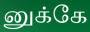
னுக்கே